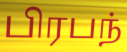
பிரபந்